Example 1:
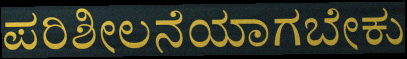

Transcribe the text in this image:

ಪರಿಶೀಲನೆಯಾಗಬೇಕು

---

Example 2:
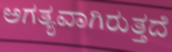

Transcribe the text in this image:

ಅಗತ್ಯವಾಗಿರುತ್ತದೆ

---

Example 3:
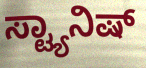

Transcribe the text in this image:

ಸ್ಟ್ಯಾನಿಷ್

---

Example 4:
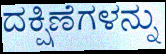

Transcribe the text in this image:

ದಕ್ಷಿಣೆಗಳನ್ನು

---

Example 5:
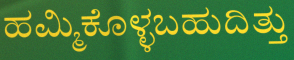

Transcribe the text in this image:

ಹಮ್ಮಿಕೊಳ್ಳಬಹುದಿತ್ತು